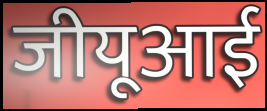
जीयूआई